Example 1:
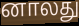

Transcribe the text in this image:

னாலது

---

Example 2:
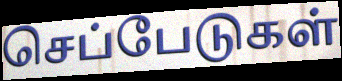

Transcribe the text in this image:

செப்பேடுகள்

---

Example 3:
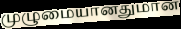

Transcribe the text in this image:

முழுமையானதுமான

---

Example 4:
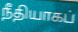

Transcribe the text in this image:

நீதியாகப்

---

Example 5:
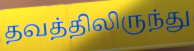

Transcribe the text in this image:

தவத்திலிருந்து